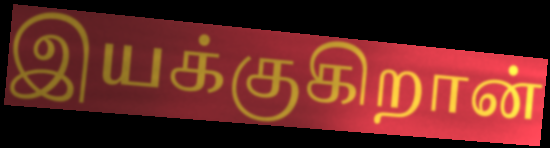
இயக்குகிறான்